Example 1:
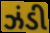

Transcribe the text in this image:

ઝંડી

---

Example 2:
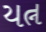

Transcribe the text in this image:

યત્ન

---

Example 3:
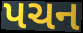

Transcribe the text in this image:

પચન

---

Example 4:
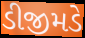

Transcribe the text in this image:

ડીજીમડે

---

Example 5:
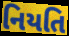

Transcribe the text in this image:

નિયતિ